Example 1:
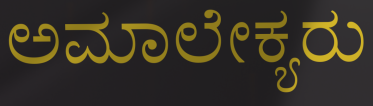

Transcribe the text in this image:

ಅಮಾಲೇಕ್ಯರು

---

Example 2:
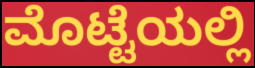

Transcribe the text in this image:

ಮೊಟ್ಟೆಯಲ್ಲಿ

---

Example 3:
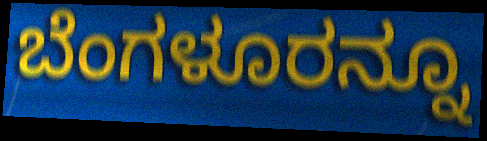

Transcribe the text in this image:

ಬೆಂಗಳೂರನ್ನೂ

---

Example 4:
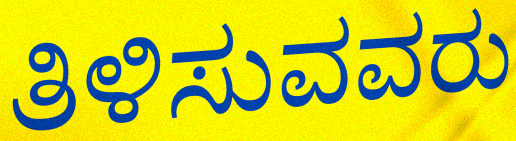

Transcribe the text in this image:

ತಿಳಿಸುವವರು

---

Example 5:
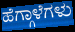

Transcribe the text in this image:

ಹೆಗ್ಗಾಳೆಗಳು